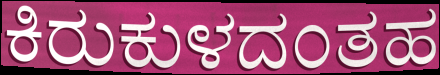
ಕಿರುಕುಳದಂತಹ